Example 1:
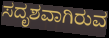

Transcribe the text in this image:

ಸದೃಶವಾಗಿರುವ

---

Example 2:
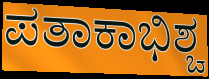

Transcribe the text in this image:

ಪತಾಕಾಭಿಶ್ಚ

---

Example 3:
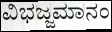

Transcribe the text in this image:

ವಿಭಜ್ಜಮಾನಂ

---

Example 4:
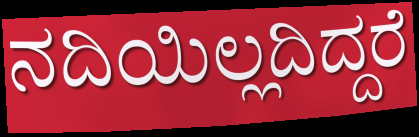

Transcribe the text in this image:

ನದಿಯಿಲ್ಲದಿದ್ದರೆ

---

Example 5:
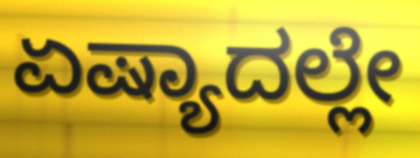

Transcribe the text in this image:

ಏಷ್ಯಾದಲ್ಲೇ